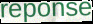
reponse